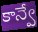
కాన్వే